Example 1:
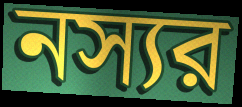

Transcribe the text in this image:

নস্যর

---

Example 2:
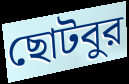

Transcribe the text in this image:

ছোটবুর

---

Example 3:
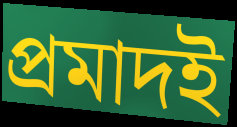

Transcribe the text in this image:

প্রমাদই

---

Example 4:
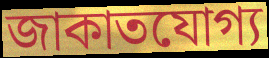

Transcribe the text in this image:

জাকাতযোগ্য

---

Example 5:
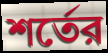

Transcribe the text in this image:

শর্তের